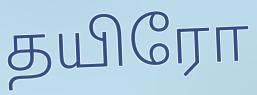
தயிரோ